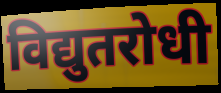
विद्युतरोधी